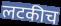
लटकीच